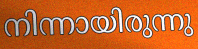
നിന്നായിരുന്നു